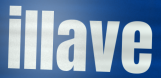
illave